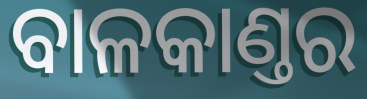
ବାଳକାଣ୍ତର